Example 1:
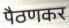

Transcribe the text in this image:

पैठणकर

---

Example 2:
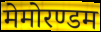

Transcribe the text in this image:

मेमोरण्डम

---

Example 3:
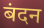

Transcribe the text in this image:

बंदन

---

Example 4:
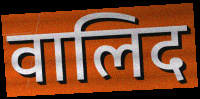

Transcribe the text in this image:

वालिद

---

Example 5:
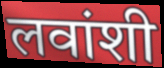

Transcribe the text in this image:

लवांशी